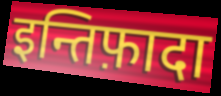
इन्तिफ़ादा